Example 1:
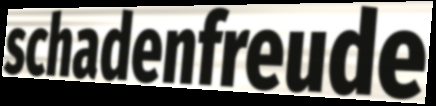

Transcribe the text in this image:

schadenfreude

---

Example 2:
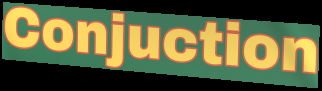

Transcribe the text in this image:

Conjuction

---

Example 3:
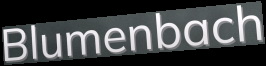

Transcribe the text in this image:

Blumenbach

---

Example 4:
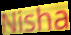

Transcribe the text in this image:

Nisha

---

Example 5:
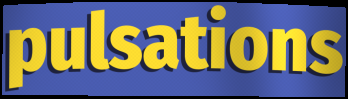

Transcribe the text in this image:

pulsations